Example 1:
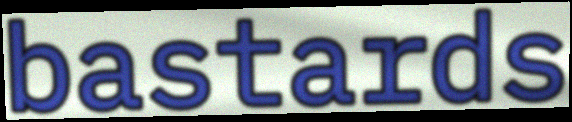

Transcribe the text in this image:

bastards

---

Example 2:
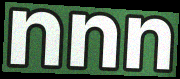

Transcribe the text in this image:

nnn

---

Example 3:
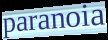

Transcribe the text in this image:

paranoia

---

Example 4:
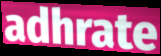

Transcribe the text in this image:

adhrate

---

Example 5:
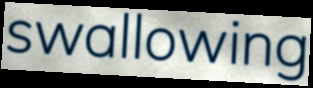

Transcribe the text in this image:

swallowing